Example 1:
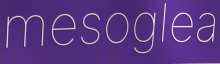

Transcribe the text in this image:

mesoglea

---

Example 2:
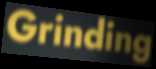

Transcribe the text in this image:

Grinding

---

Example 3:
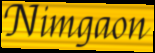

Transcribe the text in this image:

Nimgaon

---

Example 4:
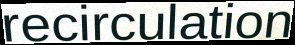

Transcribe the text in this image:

recirculation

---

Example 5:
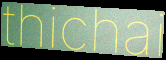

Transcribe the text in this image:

thichai